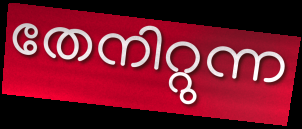
തേനിറ്റുന്ന